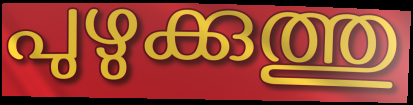
പുഴുക്കുത്തു